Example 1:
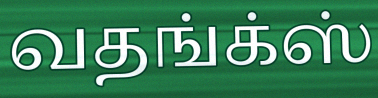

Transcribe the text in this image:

வதங்க்ஸ்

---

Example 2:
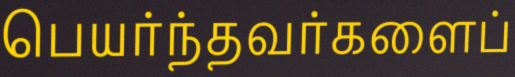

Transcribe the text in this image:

பெயர்ந்தவர்களைப்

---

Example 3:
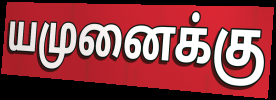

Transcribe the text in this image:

யமுனைக்கு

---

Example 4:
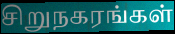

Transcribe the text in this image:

சிறுநகரங்கள்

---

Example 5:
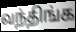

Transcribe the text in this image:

வந்திங்க